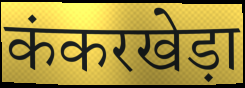
कंकरखेड़ा